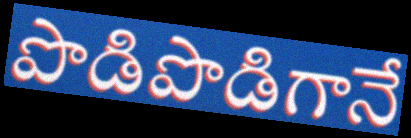
పొడిపొడిగానే